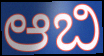
ಆಬಿ